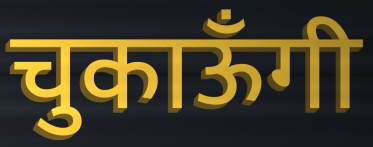
चुकाऊँगी